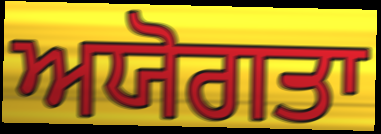
ਅਯੋਗਤਾ